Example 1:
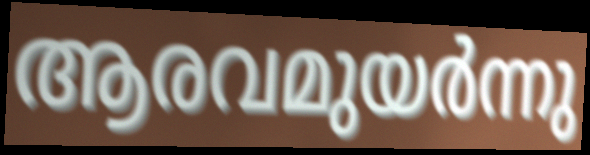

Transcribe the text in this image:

ആരവമുയർന്നു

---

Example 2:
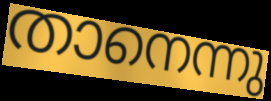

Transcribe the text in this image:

താനെന്നു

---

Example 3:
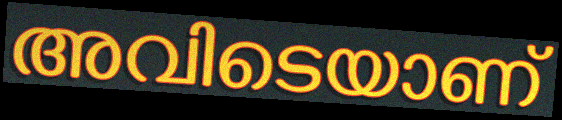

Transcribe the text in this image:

അവിടെയാണ്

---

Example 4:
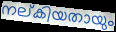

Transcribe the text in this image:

നല്കിയതായും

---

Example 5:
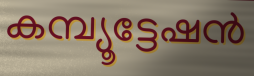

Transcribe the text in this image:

കമ്പ്യൂട്ടേഷൻ